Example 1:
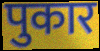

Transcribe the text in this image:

पुकार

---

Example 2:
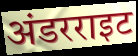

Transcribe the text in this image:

अंडरराइट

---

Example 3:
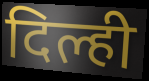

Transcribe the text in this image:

दिल्ही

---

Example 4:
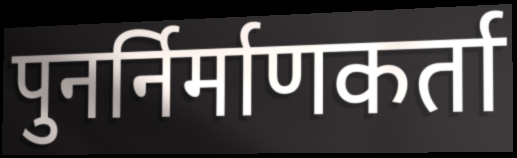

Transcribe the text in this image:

पुनर्निर्माणकर्ता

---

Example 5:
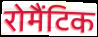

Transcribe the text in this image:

रोमैंटिक